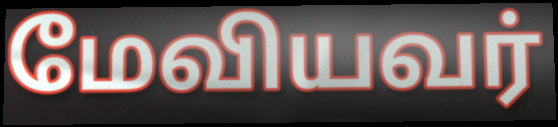
மேவியவர்